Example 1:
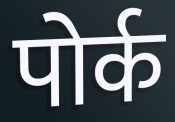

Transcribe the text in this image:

पोर्क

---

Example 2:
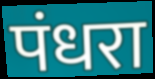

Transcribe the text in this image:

पंधरा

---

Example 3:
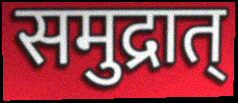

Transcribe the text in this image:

समुद्रात्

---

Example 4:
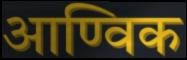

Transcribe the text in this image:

आण्विक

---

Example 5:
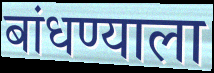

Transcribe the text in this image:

बांधण्याला